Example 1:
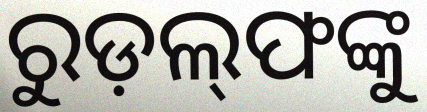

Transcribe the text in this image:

ରୁଡ଼ଲ୍‍ଫଙ୍କୁ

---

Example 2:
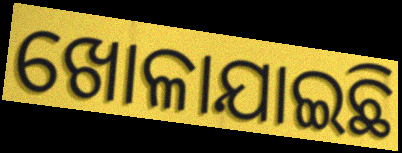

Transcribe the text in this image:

ଖୋଳାଯାଇଛି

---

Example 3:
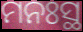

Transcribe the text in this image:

ମନଃସ୍ଥ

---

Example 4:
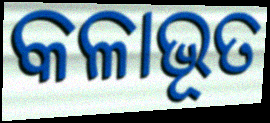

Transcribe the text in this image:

କଳାଭୂତ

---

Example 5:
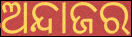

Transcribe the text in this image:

ଅନ୍ଦାଜର